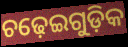
ଚଢ଼େଇଗୁଡ଼ିକ